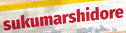
sukumarshidore